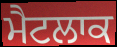
ਮੈਟਲਾਕ